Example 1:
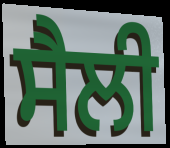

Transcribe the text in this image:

ਸੈਲੀ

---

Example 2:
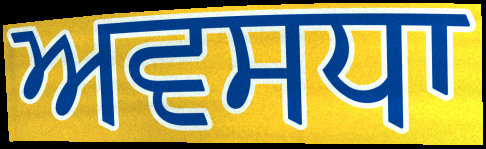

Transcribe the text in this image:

ਅਵਸਧਾ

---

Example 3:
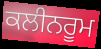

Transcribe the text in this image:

ਕਲੀਨਰੂਮ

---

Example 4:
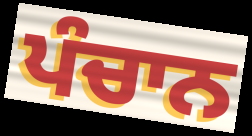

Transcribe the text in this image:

ਪੰਚਾਨ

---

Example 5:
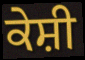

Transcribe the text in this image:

ਕੇਸ਼ੀ